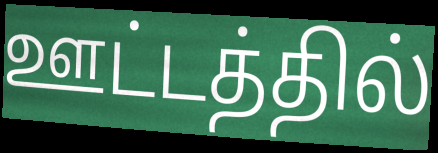
ஊட்டத்தில்